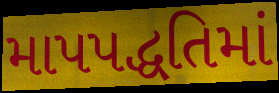
માપપદ્ધતિમાં